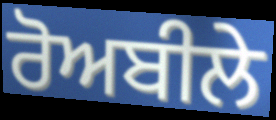
ਰੋਅਬੀਲੇ